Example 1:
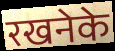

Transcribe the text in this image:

रखनेके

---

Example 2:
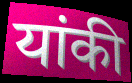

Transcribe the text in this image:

यांकी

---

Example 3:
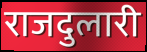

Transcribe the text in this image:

राजदुलारी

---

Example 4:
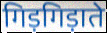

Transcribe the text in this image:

गिड़गिड़ाते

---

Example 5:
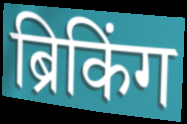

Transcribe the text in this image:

ब्रिकिंग